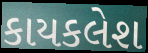
કાયકલેશ